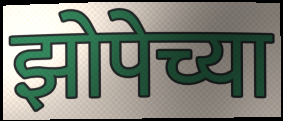
झोपेच्या